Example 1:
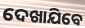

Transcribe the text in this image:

ଦେଖାଯିବେ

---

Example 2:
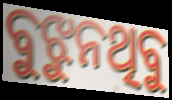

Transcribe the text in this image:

ବୁଝୁନଥିବୁ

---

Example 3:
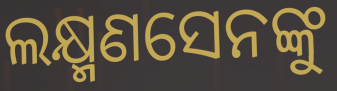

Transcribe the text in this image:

ଲକ୍ଷ୍ମଣସେନଙ୍କୁ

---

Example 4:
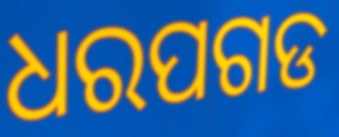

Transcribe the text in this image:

ଧରପଗଡ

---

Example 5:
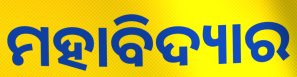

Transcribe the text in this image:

ମହାବିଦ୍ୟାର